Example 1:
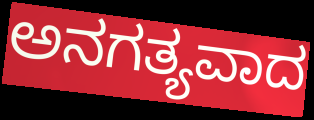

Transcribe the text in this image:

ಅನಗತ್ಯವಾದ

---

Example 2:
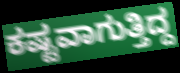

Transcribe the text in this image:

ಕಷ್ಟವಾಗುತ್ತಿದ್ದ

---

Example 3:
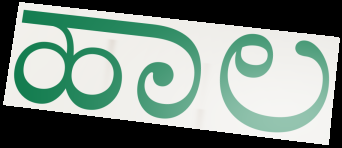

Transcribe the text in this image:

ಹಾಲ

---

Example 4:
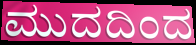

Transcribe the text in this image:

ಮುದದಿಂದ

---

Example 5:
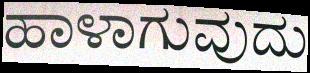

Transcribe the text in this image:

ಹಾಳಾಗುವುದು